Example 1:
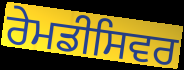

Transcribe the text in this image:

ਰੇਮਡੀਸਿਵਰ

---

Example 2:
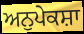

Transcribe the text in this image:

ਅਨੁਪੇਕਸ਼ਾ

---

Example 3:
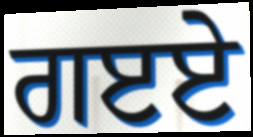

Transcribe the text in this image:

ਗੲਏ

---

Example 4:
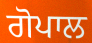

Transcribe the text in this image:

ਗੋਪਾਲ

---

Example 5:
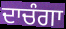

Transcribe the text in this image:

ਦਾਚੰਗਾ